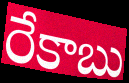
రేకాబు